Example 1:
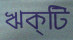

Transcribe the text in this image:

ঋক্‌টি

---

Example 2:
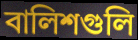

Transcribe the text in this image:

বালিশগুলি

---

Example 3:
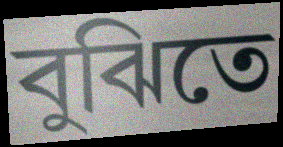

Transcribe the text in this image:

বুঝিতে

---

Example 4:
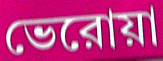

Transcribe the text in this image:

ভেরোয়া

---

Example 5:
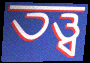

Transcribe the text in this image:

তত্ত্ব